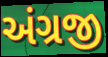
અંગ્રજી